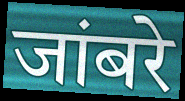
जांबरे